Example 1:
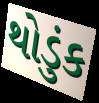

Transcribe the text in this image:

થોડુંક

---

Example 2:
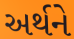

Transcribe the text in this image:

અર્થને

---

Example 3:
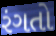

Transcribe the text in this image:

રંગતો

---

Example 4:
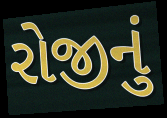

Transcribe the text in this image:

રોજીનું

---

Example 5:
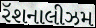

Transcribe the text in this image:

રૅશનાલીઝમ